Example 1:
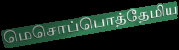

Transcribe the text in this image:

மெசொப்பொத்தேமிய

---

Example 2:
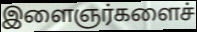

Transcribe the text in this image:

இளைஞர்களைச்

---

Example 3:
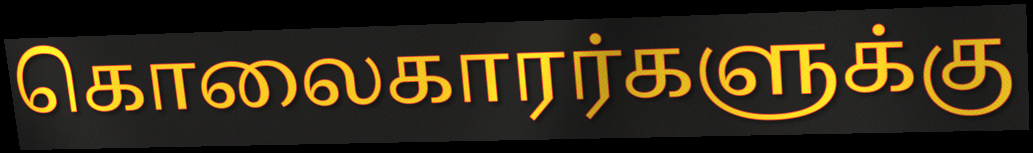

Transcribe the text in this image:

கொலைகாரர்களுக்கு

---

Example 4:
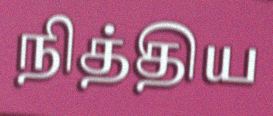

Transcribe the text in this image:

நித்திய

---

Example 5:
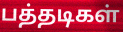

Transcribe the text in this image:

பத்தடிகள்